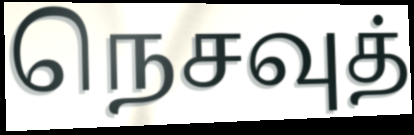
நெசவுத்